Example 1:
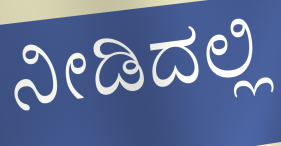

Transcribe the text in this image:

ನೀಡಿದಲ್ಲಿ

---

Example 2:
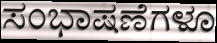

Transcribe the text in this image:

ಸಂಭಾಷಣೆಗಳೂ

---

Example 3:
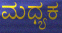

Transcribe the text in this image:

ಮಧ್ಯಕ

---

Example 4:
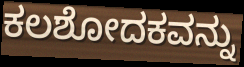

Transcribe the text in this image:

ಕಲಶೋದಕವನ್ನು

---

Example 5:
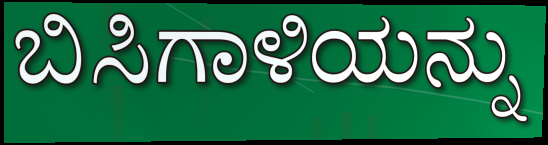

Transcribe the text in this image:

ಬಿಸಿಗಾಳಿಯನ್ನು